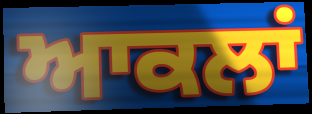
ਆਕਲਾਂ